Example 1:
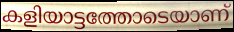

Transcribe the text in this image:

കളിയാട്ടത്തോടെയാണ്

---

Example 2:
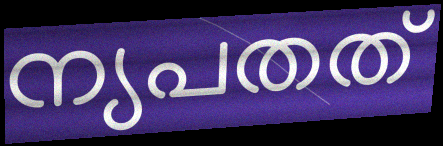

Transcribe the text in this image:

ന്യപതത്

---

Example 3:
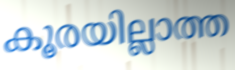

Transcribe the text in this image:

കൂരയില്ലാത്ത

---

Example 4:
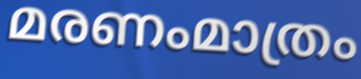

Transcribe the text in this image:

മരണംമാത്രം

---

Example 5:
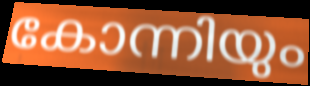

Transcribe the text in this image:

കോന്നിയും